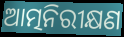
ଆତ୍ମନିରୀକ୍ଷଣ